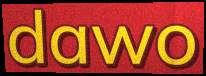
dawo